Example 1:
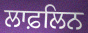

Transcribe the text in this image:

ਲਾਫ਼ਲਿਨ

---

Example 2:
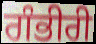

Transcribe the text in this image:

ਗੰਭੀਰੀ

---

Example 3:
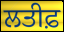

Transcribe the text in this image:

ਲਤੀਫ਼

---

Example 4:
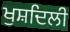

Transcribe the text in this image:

ਖੁਸ਼ਦਿਲੀ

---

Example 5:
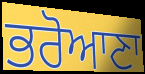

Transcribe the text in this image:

ਭਰੋਆਣਾ